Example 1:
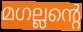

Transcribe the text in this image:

മഗല്ലന്റെ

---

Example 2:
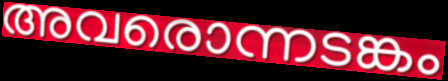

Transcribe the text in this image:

അവരൊന്നടങ്കം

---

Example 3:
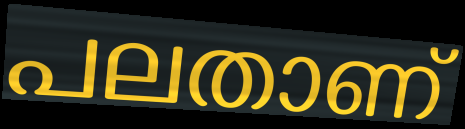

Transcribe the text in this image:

പലതാണ്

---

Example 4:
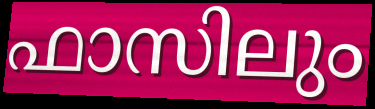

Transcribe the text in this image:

ഫാസിലും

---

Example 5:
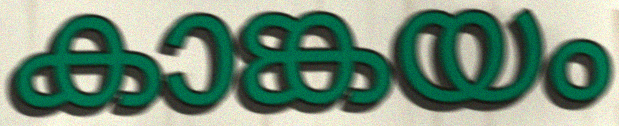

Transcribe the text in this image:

കാങ്കയം